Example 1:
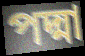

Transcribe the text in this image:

পদ্মা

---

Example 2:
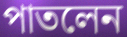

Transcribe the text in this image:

পাতলেন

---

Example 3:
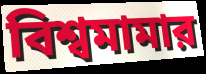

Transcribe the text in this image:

বিশ্বমামার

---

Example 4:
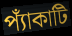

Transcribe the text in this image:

প্যাঁকাটি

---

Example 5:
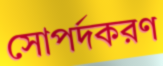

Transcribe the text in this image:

সোপর্দকরণ